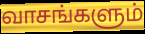
வாசங்களும்